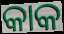
କାକ